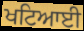
ਖਟਿਆਈ